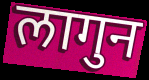
लागुन